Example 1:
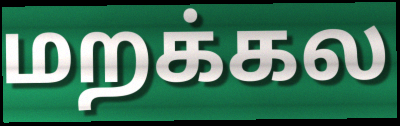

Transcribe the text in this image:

மறக்கல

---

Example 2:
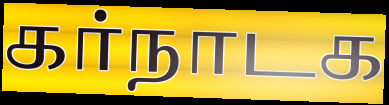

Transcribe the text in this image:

கர்நாடக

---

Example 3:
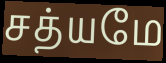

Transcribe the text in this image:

சத்யமே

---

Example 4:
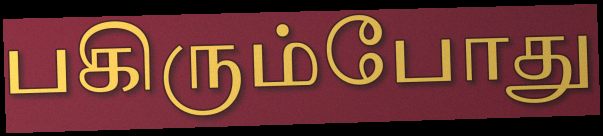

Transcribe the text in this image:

பகிரும்போது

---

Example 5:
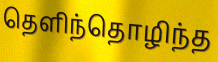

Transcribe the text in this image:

தெளிந்தொழிந்த